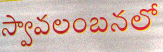
స్వావలంబనలో